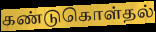
கண்டுகொள்தல்